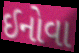
ઈનોવા